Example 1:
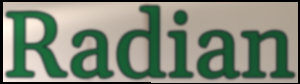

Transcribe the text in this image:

Radian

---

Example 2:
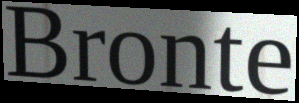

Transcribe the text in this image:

Bronte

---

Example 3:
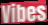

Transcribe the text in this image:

Vibes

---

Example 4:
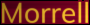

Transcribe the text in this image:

Morrell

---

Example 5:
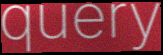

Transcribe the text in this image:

query